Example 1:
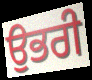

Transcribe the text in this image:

ਉਭਰੀ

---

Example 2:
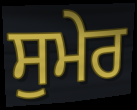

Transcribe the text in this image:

ਸੁਮੇਰ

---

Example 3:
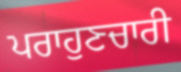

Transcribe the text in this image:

ਪਰਾਹੁਣਚਾਰੀ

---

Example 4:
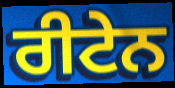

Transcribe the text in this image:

ਰੀਟੇਨ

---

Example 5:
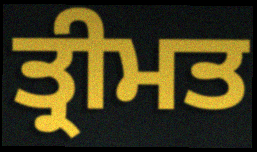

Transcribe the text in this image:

ਤ੍ਰੀਮਤ